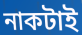
নাকটাই